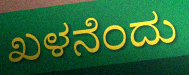
ಖಳನೆಂದು